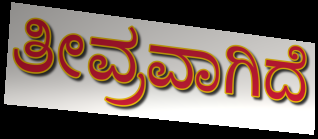
ತೀವ್ರವಾಗಿದೆ